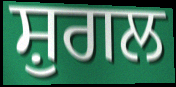
ਸ਼ੁਗਲ